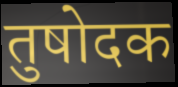
तुषोदक